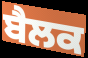
ਬੈਲਕ